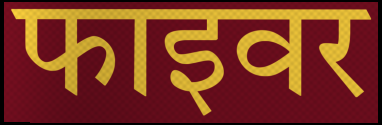
फाइवर